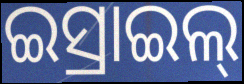
ଇସ୍ରାଇଲ୍